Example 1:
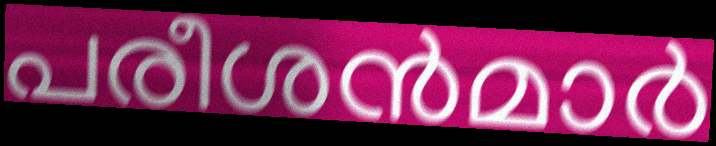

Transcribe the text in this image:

പരീശൻമാർ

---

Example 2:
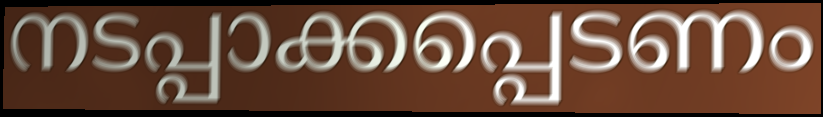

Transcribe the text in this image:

നടപ്പാക്കപ്പെടണം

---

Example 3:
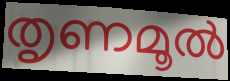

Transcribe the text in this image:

തൃണമൂൽ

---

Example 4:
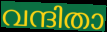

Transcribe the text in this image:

വന്ദിതാ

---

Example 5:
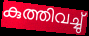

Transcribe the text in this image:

കുത്തിവച്ചു്